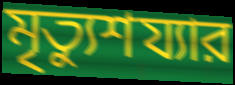
মৃত্যুশয্যার